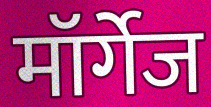
मॉर्गेज